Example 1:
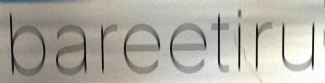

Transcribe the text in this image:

bareetiru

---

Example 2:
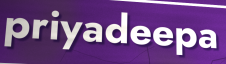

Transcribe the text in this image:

priyadeepa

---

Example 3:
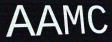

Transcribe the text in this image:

AAMC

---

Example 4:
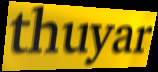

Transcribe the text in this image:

thuyar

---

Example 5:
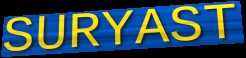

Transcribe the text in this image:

SURYAST